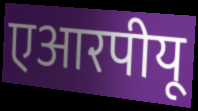
एआरपीयू